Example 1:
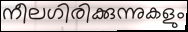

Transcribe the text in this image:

നീലഗിരിക്കുന്നുകളും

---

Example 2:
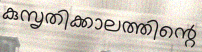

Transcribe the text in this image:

കുസൃതിക്കാലത്തിന്റെ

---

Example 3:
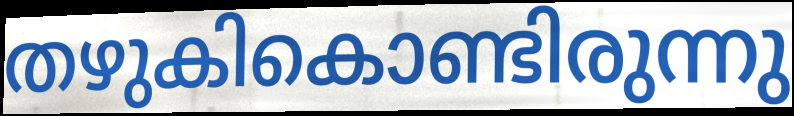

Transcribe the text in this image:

തഴുകികൊണ്ടിരുന്നു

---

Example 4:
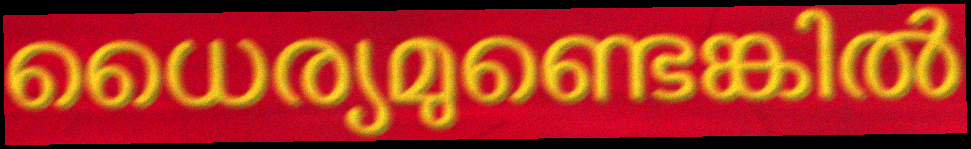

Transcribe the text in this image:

ധൈര്യമുണ്ടെങ്കിൽ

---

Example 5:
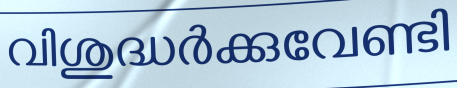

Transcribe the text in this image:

വിശുദ്ധർക്കുവേണ്ടി